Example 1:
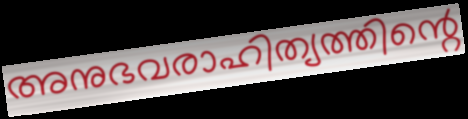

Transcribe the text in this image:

അനുഭവരാഹിത്യത്തിന്റെ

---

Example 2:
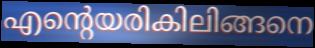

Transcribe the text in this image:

എന്റെയരികിലിങ്ങനെ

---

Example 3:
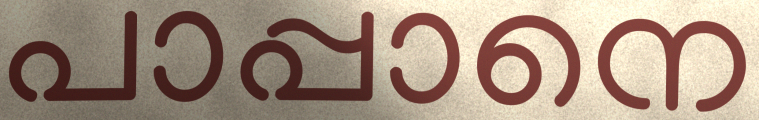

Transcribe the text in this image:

പാപ്പാനെ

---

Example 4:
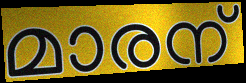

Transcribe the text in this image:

മാരന്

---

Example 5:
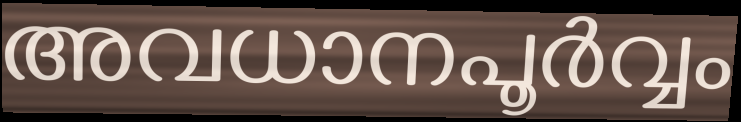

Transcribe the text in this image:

അവധാനപൂർവ്വം